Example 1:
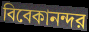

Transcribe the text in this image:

বিবেকানন্দর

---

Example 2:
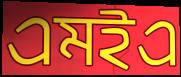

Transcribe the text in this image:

এমইএ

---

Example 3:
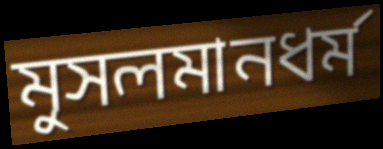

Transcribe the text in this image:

মুসলমানধর্ম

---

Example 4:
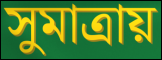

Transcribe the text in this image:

সুমাত্রায়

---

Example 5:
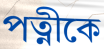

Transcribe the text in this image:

পত্নীকে